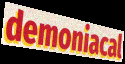
demoniacal